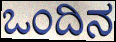
ಒಂದಿನ